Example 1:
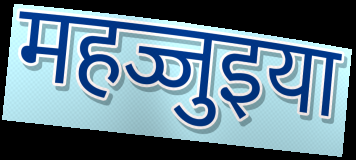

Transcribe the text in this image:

महज्जुइया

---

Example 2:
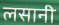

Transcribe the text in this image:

लसानी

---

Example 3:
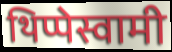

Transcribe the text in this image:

थिप्पेस्वामी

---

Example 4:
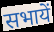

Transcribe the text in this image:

सभायें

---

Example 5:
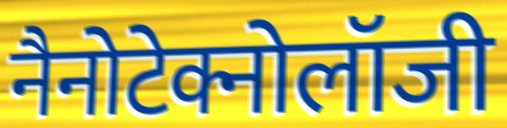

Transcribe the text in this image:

नैनोटेक्नोलॉजी